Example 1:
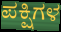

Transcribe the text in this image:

ಪಕ್ಷಿಗಳ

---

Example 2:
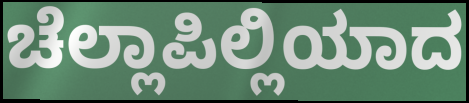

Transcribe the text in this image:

ಚೆಲ್ಲಾಪಿಲ್ಲಿಯಾದ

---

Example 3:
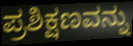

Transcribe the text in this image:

ಪ್ರಶಿಕ್ಷಣವನ್ನು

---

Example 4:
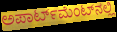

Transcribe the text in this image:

ಅಪಾರ್ಟ್‌ಮೆಂಟ್‌ನಲ್ಲಿ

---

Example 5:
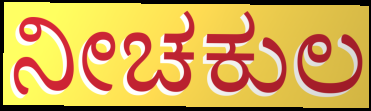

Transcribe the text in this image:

ನೀಚಕುಲ